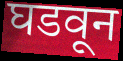
घडवून